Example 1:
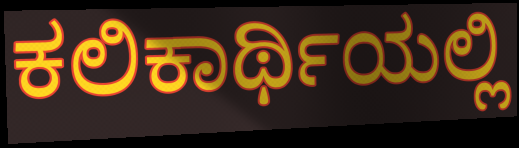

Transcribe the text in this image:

ಕಲಿಕಾರ್ಥಿಯಲ್ಲಿ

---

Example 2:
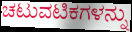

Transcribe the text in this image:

ಚಟುವಟಿಕಗಳನ್ನು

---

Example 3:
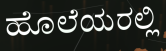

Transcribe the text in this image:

ಹೊಲೆಯರಲ್ಲಿ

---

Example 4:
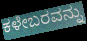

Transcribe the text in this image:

ಕಳೇಬರವನ್ನು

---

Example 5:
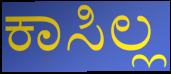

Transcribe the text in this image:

ಕಾಸಿಲ್ಲ